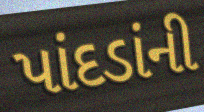
પાંદડાંની